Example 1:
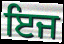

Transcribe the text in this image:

ਇਜ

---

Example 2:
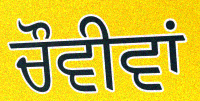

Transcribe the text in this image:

ਚੌਵੀਵਾਂ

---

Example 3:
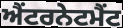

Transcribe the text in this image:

ਐਂਟਰਨੇਟਮੈਂਟ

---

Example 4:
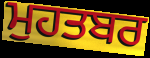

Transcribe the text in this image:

ਮੁਹਤਬਰ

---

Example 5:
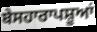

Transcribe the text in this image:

ਬੇਸਹਾਰਾਪਸ਼ੂਆਂ